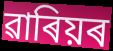
ৱাৰিয়ৰ